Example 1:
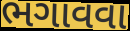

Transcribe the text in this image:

ભગાવવા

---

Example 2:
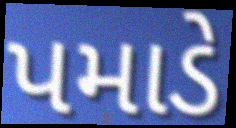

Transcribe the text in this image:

પમાડે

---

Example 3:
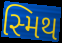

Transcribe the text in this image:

સ્મિથ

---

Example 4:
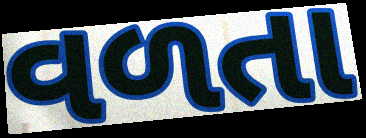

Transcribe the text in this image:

વળતા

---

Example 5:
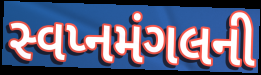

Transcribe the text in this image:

સ્વપ્નમંગલની